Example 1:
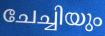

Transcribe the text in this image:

ചേച്ചിയും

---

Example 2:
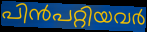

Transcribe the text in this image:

പിൻപറ്റിയവർ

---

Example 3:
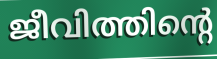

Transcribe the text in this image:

ജീവിത്തിന്റെ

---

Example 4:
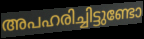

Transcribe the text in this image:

അപഹരിച്ചിട്ടുണ്ടോ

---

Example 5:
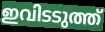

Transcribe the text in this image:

ഇവിടടുത്ത്